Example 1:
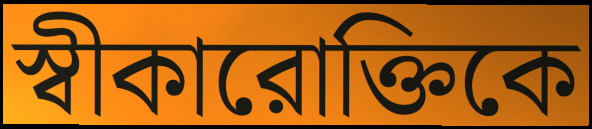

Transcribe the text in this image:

স্বীকারোক্তিকে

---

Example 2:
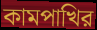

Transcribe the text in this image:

কামপাখির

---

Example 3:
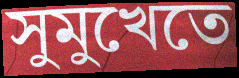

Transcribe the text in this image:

সুমুখেতে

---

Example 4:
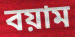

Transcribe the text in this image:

বয়াম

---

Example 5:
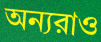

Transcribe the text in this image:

অন্যরাও